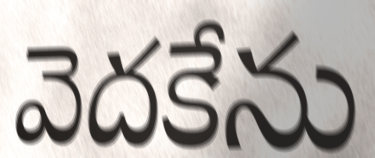
వెదకేను